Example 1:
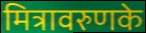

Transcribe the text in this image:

मित्रावरुणके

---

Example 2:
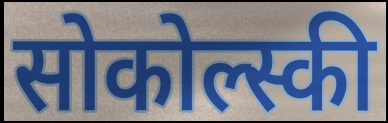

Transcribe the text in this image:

सोकोल्स्की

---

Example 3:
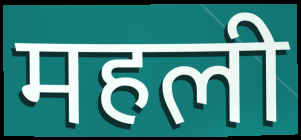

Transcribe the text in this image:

महली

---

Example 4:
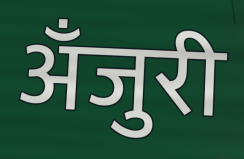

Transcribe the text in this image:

अँजुरी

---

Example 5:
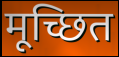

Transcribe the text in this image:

मूच्छित